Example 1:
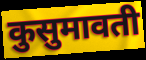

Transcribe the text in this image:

कुसुमावती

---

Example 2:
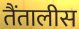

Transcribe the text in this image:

तैंतालीस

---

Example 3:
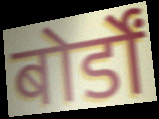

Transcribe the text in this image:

बोर्डों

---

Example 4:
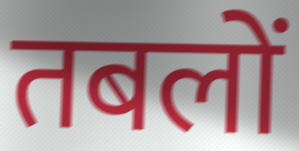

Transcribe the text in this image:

तबलों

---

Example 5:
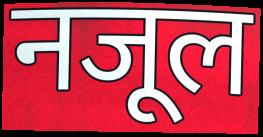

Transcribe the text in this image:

नजूल